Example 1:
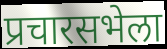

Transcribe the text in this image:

प्रचारसभेला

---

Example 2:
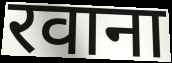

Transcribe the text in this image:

रवाना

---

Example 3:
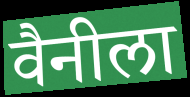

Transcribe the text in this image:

वैनीला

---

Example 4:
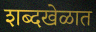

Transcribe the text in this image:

शब्दखेळात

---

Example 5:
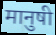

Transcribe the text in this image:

मानुषी